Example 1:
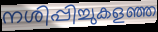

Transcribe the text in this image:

നശിപ്പിച്ചുകളഞ്ഞ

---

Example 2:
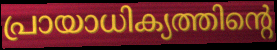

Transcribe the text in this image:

പ്രായാധിക്യത്തിന്റെ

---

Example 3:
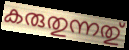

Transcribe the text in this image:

കരുതുന്നതു്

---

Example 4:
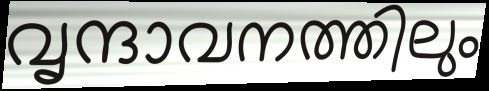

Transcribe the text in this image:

വൃന്ദാവനത്തിലും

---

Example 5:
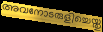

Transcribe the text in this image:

അവനോടരുളിച്ചെയ്തു